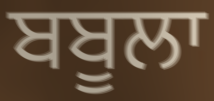
ਬਬੂਲਾ